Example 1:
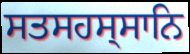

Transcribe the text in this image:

ਸਤਸਹਸ੍ਸਾਨਿ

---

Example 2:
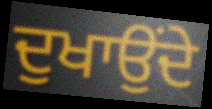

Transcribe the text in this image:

ਦੁਖਾਉਂਦੇ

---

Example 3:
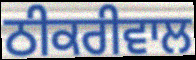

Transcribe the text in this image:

ਠੀਕਰੀਵਾਲ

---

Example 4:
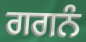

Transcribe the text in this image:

ਗਗਨੰ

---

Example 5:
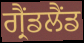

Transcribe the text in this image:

ਗ੍ਰੈਂਡਲੈਂਡ